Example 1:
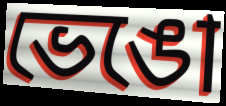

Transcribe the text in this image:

ভেঙো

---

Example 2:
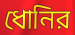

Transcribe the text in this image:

ধোনির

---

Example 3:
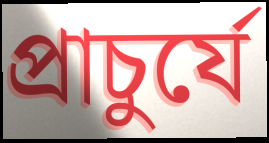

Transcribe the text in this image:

প্রাচুর্যে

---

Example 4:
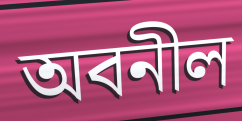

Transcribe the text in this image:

অবনীল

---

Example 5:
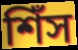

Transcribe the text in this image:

শিঁস